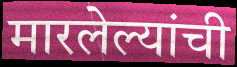
मारलेल्यांची